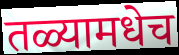
तळ्यामधेच